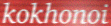
kokhonoi